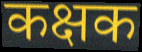
कक्षक